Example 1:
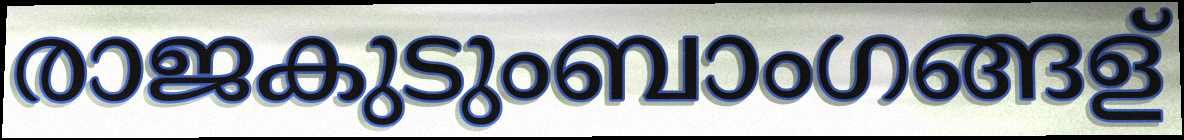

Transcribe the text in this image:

രാജകുടുംബാംഗങ്ങള്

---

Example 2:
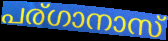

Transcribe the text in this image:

പര്ഗാനാസ്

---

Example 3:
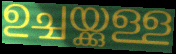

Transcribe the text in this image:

ഉച്ചയ്ക്കുള്ള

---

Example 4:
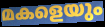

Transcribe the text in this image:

മകളെയും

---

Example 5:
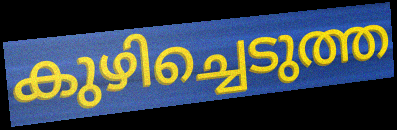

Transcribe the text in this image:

കുഴിച്ചെടുത്ത